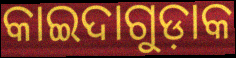
କାଇଦାଗୁଡ଼ାକ